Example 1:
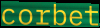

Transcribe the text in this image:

corbet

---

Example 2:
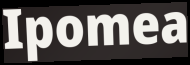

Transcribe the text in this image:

Ipomea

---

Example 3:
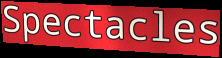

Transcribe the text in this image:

Spectacles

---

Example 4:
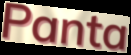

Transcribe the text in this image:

Panta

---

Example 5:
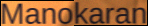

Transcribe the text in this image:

Manokaran